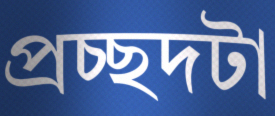
প্রচ্ছদটা